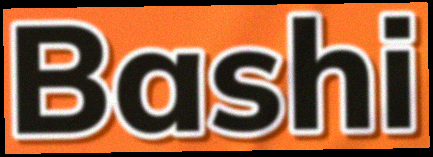
Bashi